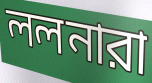
ললনারা